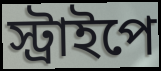
স্ট্রাইপে